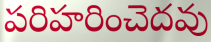
పరిహరించెదవు